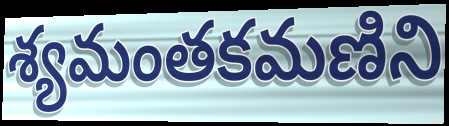
శ్యమంతకమణిని